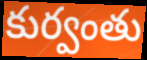
కుర్వంతు